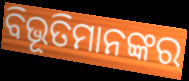
ବିଭୂତିମାନଙ୍କର